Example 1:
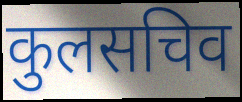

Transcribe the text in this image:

कुलसचिव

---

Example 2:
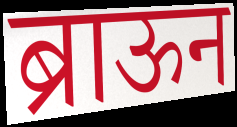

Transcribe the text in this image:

ब्राऊन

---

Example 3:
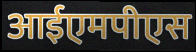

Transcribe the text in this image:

आईएमपीएस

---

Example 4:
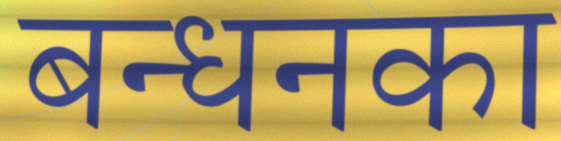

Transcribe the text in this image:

बन्धनका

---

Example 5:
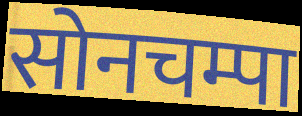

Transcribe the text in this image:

सोनचम्पा